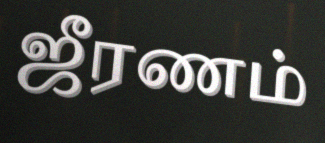
ஜீரணம்